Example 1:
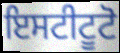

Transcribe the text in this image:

ਇਸਟੀਟੂਟੋ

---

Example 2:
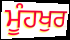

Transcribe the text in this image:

ਮੂੰਹਖੁਰ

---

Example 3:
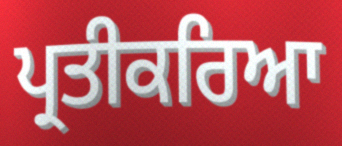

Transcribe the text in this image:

ਪ੍ਰਤੀਕਰਿਆ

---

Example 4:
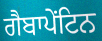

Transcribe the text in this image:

ਗੈਬਾਪੇਂਟਿਨ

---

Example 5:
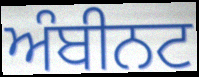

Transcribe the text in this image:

ਅੰਬੀਨਟ